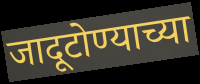
जादूटोण्याच्या